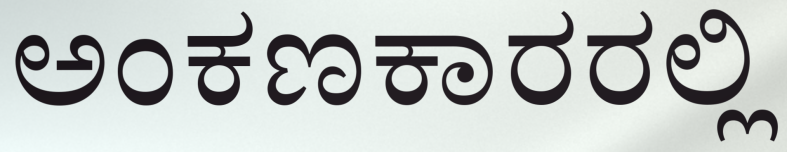
ಅಂಕಣಕಾರರಲ್ಲಿ